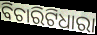
ବିଚାରିଟିଧାରା